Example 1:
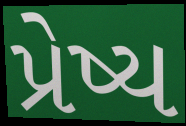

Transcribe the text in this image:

પ્રેષ્ય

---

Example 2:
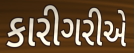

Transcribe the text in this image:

કારીગરીએ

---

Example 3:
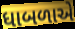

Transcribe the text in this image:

ધાબળાએ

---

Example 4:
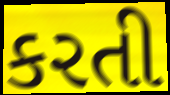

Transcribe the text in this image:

કરતી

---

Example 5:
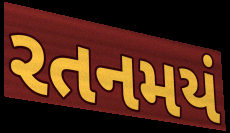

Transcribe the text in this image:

રતનમયં